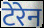
टेरेन